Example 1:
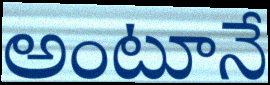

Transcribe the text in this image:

అంటూనే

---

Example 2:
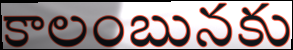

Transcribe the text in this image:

కాలంబునకు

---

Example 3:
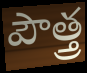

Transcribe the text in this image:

పౌత్త్ర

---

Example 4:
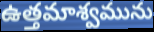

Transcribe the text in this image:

ఉత్తమాశ్వమును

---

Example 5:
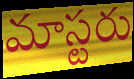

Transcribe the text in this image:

మాస్టరు